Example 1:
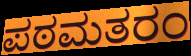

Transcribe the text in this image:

ಪಠಮತರಂ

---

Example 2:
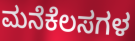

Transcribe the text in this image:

ಮನೆಕೆಲಸಗಳ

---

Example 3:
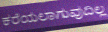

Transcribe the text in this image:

ಕರೆಯಲಾಗುವುದಿಲ್ಲ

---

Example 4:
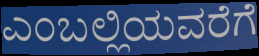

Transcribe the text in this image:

ಎಂಬಲ್ಲಿಯವರೆಗೆ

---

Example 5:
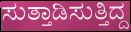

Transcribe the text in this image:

ಸುತ್ತಾಡಿಸುತ್ತಿದ್ದ